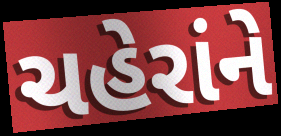
ચહેરાંને